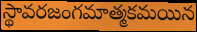
స్థావరజంగమాత్మకమయిన